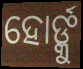
ହୋର୍ଙ୍କୁ